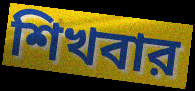
শিখবার